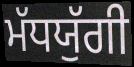
ਮੱਧਯੁੱਗੀ